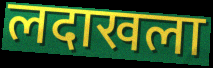
लदाखला